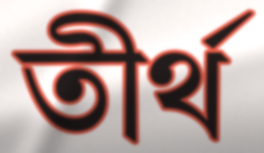
তীৰ্থ